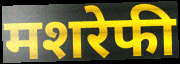
मशरेफी